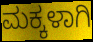
ಮಕ್ಕಳಾಗಿ